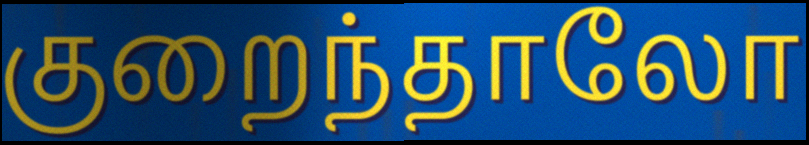
குறைந்தாலோ